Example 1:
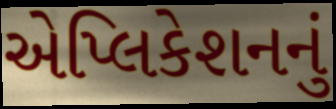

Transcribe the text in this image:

એપ્લિકેશનનું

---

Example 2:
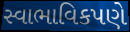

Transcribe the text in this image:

સ્વાભાવિકપણે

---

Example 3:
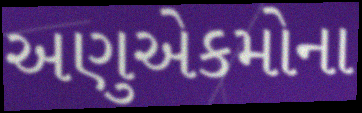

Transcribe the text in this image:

અણુએકમોના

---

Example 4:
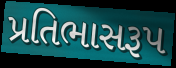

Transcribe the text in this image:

પ્રતિભાસરૂપ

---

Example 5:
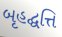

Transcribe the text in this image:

બૃહદ્ઘત્તિ